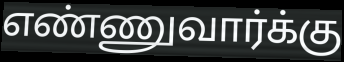
எண்ணுவார்க்கு